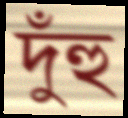
দুঁহু